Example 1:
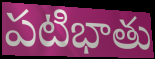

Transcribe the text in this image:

పటిభాతు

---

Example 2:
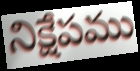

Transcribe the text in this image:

నిక్షేపము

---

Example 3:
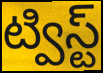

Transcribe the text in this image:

ట్విస్ట్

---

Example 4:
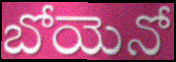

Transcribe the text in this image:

బోయెనో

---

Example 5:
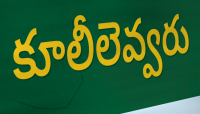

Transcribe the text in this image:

కూలీలెవ్వరు